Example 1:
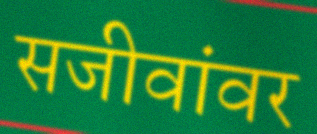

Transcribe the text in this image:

सजीवांवर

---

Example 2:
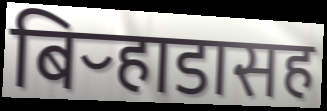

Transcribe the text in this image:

बिऱ्हाडासह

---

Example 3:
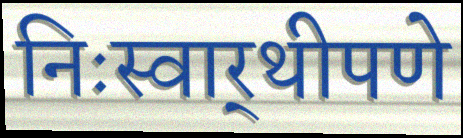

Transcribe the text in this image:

निःस्वार्थीपणे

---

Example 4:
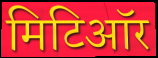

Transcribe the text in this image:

मिटिऑर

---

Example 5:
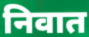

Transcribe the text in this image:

निवात